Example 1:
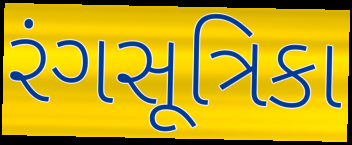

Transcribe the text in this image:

રંગસૂત્રિકા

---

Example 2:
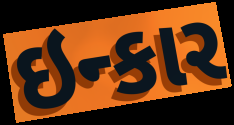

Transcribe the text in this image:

ઇન્કાર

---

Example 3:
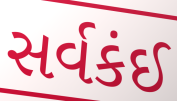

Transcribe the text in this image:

સર્વકંઈ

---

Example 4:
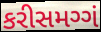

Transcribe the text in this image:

કરીસમગ્ગં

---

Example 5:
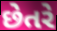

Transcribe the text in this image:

છેતરે